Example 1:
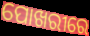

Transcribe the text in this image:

ପୋଖରୀରେ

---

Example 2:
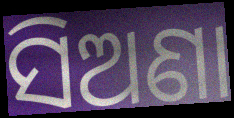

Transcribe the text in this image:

ସିଅଣା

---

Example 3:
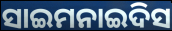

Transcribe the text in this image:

ସାଇମନାଇଦିସ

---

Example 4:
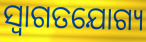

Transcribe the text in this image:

ସ୍ବାଗତଯୋଗ୍ୟ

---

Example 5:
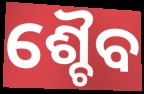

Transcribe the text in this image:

ଶ୍ଚୈବ